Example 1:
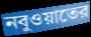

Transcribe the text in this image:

নবুওয়াতের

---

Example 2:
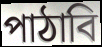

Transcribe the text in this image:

পাঠাবি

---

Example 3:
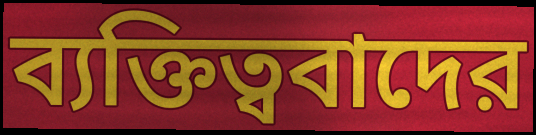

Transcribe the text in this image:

ব্যক্তিত্ববাদের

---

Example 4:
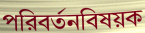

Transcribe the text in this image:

পরিবর্তনবিষয়ক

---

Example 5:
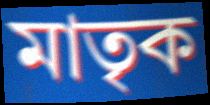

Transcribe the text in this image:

মাতৃক